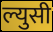
ल्युसी